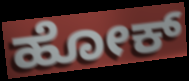
ಹೋಕ್